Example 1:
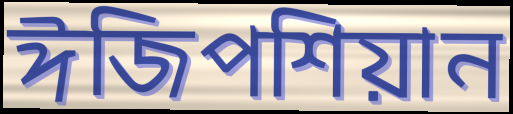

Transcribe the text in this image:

ঈজিপশিয়ান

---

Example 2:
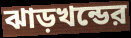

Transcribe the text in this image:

ঝাড়খন্ডের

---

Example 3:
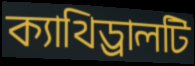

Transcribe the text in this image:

ক্যাথিড্রালটি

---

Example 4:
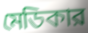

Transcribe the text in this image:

মেডিকার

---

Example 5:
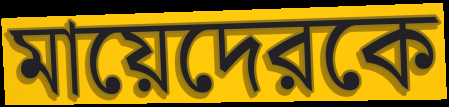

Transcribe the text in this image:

মায়েদেরকে